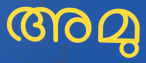
അമു